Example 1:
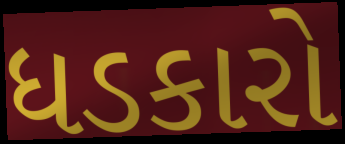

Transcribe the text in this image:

ધડકારો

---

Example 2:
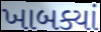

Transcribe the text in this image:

ખાબક્યાં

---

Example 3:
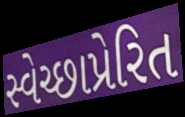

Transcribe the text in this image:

સ્વેચ્છાપ્રેરિત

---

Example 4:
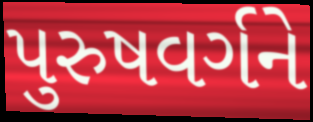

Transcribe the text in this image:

પુરુષવર્ગને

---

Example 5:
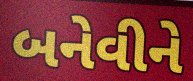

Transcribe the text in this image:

બનેવીને